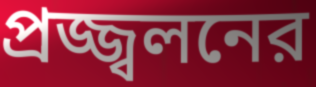
প্রজ্জ্বলনের